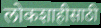
लोकशाहीसाठी